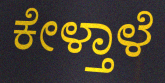
ಕೇಳ್ತಾಳೆ